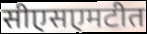
सीएसएमटीत